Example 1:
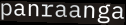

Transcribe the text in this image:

panraanga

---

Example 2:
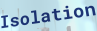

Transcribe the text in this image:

Isolation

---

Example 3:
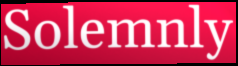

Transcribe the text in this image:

Solemnly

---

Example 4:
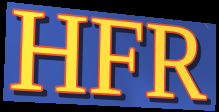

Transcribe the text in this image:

HFR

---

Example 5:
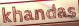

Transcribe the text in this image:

khandas